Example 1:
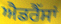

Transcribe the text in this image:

ਐਡਰੈੱਸਾਂ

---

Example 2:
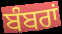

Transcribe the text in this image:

ਬੰਬਰਾਂ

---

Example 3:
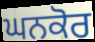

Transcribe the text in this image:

ਘਨਕੋਰ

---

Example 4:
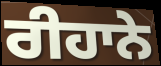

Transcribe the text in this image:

ਰੀਹਾਨੇ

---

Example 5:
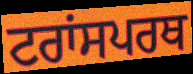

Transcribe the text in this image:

ਟਰਾਂਸਪਰਥ